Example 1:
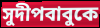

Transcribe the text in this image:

সুদীপবাবুকে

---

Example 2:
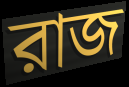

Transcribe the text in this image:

রাজ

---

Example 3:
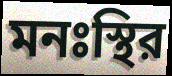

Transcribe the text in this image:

মনঃস্থির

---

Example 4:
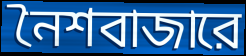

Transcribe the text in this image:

নৈশবাজারে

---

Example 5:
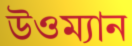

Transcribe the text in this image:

উওম্যান